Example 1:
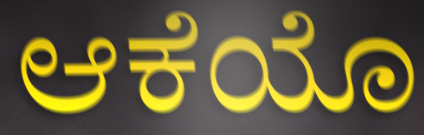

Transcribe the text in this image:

ಆಕೆಯೊ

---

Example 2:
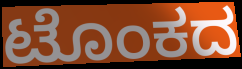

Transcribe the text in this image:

ಟೊಂಕದ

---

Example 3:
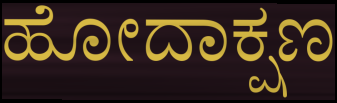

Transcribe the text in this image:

ಹೋದಾಕ್ಷಣ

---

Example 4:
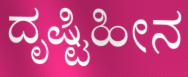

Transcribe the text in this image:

ದೃಷ್ಟಿಹೀನ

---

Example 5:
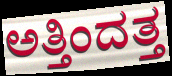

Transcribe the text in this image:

ಅತ್ತಿಂದತ್ತ